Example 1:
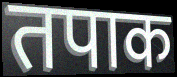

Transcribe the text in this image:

तपाक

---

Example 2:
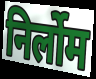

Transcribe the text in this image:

निर्लोम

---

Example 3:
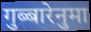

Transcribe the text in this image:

गुब्बारेनुमा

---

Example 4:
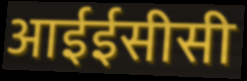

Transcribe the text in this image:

आईईसीसी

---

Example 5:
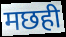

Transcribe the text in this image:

मछही